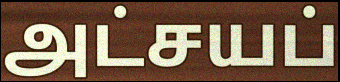
அட்சயப்